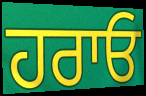
ਹਰਾਓ